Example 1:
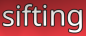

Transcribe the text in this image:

sifting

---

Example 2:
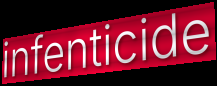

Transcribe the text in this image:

infenticide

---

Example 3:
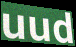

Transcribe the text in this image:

uud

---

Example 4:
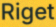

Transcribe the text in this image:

Riget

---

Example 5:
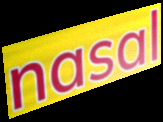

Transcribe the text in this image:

nasal